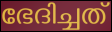
ഭേദിച്ചത്